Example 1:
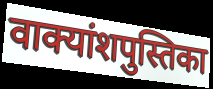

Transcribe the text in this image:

वाक्यांशपुस्तिका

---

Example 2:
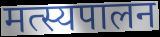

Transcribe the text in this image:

मत्स्यपालन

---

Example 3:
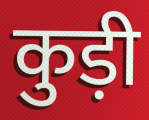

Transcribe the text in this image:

कुड़ी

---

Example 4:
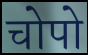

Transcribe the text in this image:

चोपो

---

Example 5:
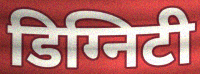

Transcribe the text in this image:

डिग्निटी